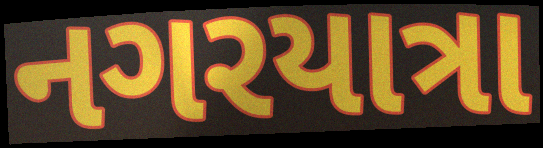
નગરયાત્રા